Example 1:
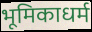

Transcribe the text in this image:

भूमिकाधर्म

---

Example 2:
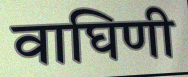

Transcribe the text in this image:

वाघिणी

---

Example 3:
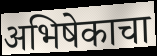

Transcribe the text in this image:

अभिषेकाचा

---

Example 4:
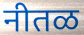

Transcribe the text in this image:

नीतळ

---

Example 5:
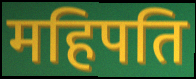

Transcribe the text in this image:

महिपति